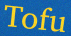
Tofu